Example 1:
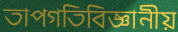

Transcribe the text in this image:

তাপগতিবিজ্ঞানীয়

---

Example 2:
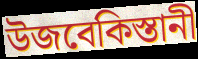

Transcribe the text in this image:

উজবেকিস্তানী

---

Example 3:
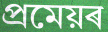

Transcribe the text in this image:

প্ৰমেয়ৰ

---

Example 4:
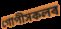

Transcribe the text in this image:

গোপীসকলৰ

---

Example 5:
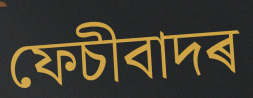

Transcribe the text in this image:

ফেচীবাদৰ